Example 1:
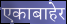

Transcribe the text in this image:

एकाबाहेर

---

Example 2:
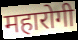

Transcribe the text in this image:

महारोगी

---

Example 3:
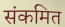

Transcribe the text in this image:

संकमित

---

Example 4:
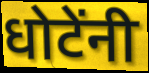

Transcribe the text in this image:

धोटेंनी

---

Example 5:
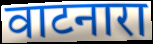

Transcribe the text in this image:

वाटनारा